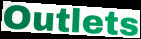
Outlets